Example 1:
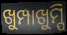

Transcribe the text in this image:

ଖୁମ୍ପାଖୁମ୍ପି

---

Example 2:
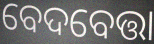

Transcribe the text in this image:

ବେଦବେତ୍ତା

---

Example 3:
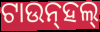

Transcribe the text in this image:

ଟାଉନ୍‌ହଲ୍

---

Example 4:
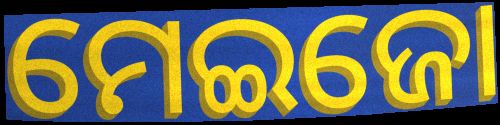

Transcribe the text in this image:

ମେଇଜୋ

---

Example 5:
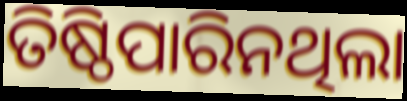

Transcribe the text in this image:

ତିଷ୍ଠିପାରିନଥିଲା